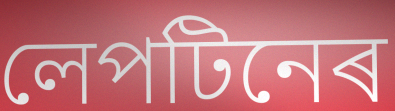
লেপটিনেৰ